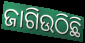
ଜାଗିଉଠିଛି